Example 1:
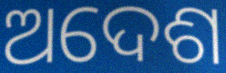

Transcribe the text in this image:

ଅଦେଶ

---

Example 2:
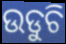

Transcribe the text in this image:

ଉଡୁଚି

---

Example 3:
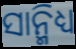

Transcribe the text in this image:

ସାନ୍ମିଧ୍ୟ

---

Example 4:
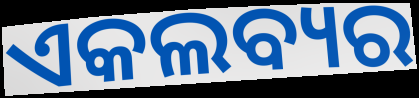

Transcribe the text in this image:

ଏକଲବ୍ୟର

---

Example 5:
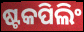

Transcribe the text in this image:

ଷ୍ଟକପିଲିଂ